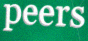
peers